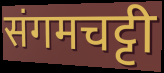
संगमचट्टी